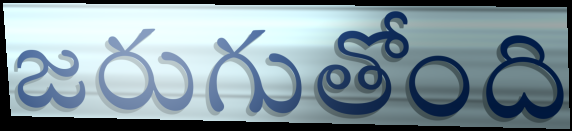
జరుగుతోంది